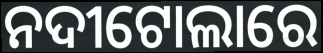
ନଦୀଟୋଲାରେ